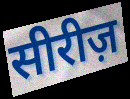
सीरीज़